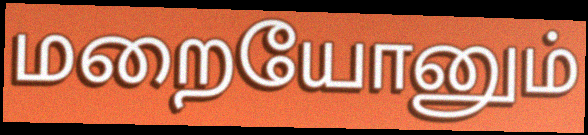
மறையோனும்